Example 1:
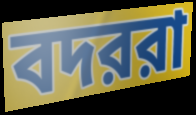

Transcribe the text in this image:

বদররা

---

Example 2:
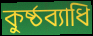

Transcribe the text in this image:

কুষ্ঠব্যাধি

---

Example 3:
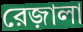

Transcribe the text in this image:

রেজ়ালা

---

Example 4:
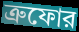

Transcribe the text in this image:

ত্রুফোর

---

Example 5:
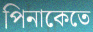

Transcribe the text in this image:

পিনাকেতে